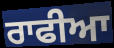
ਰਾਫੀਆ